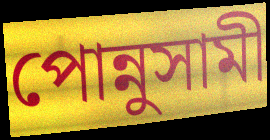
পোন্নুসামী